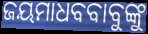
ଜୟମାଧବବାବୁଙ୍କୁ